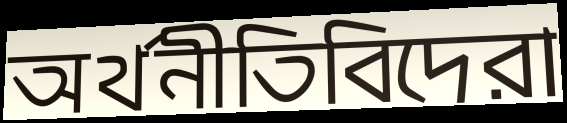
অর্থনীতিবিদেরা